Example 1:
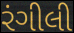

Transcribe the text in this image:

રંગીલી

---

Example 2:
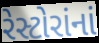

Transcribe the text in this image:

રેસ્ટોરાંનાં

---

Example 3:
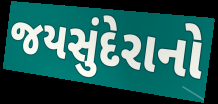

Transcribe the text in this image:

જયસુંદેરાનો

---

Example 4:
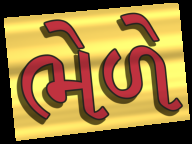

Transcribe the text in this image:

ભેળે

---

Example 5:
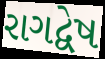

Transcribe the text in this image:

રાગદ્વેષ